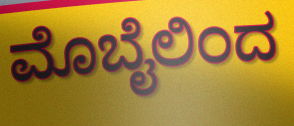
ಮೊಬೈಲಿಂದ